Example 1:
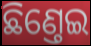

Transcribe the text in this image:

ଛିଣ୍ତେଇ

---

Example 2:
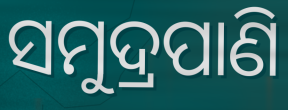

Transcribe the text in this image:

ସମୁଦ୍ରପାଣି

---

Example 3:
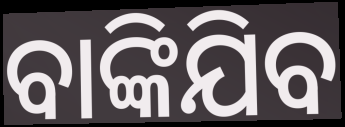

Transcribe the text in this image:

ବାଙ୍କିଯିବ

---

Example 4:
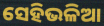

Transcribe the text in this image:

ସେହିଭଳିଆ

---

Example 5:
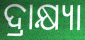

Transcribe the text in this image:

ଦ୍ରାକ୍ଷ୍ୟା